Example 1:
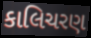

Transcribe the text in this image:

કાલિચરણ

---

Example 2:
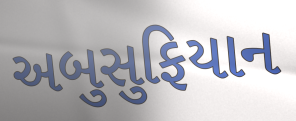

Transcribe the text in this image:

અબુસુફિયાન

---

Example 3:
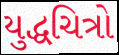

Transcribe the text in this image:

યુદ્ધચિત્રો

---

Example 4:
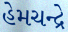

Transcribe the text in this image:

હેમચન્દ્રે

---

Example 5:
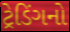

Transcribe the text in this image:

ટ્રેડિંગનો